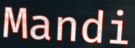
Mandi